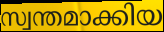
സ്വന്തമാക്കിയ